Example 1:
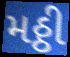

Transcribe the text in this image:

મઠ્ઠી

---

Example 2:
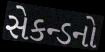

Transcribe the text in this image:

સેકન્ડનો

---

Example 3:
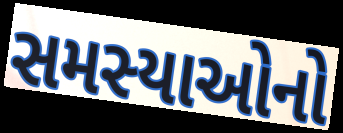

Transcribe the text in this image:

સમસ્યાઓનો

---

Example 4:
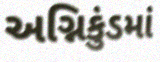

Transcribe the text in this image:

અગ્નિકુંડમાં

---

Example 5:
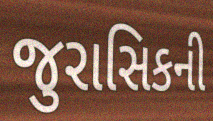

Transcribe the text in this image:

જુરાસિકની